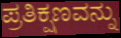
ಪ್ರತಿಕ್ಷಣವನ್ನು